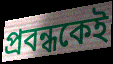
প্রবন্ধকেই